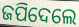
ଜପିଦେଲେ